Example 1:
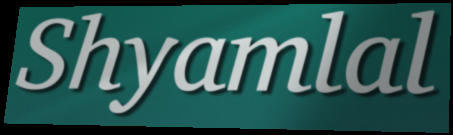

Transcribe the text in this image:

Shyamlal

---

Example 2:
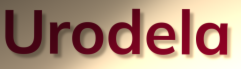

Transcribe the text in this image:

Urodela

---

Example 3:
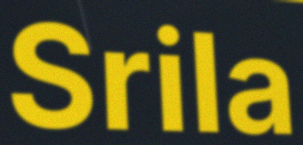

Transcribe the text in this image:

Srila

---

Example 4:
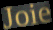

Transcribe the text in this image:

Joie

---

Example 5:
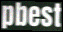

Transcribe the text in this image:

pbest